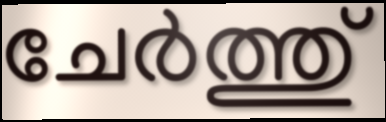
ചേർത്തു്